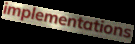
implementations